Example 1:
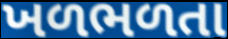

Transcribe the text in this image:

ખળભળતા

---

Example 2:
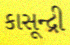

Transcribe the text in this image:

કાસૂન્દ્રી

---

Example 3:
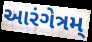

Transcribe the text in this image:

આરંગેત્રમ્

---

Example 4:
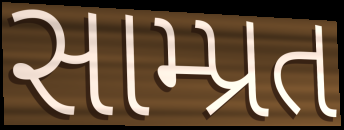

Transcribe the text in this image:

સામ્પ્રત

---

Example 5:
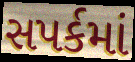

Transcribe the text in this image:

સપર્કમાં